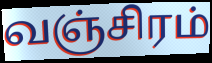
வஞ்சிரம்